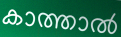
കാത്താൽ